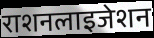
राशनलाइजेशन